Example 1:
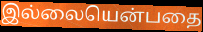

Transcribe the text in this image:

இல்லையென்பதை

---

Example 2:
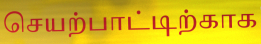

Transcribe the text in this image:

செயற்பாட்டிற்காக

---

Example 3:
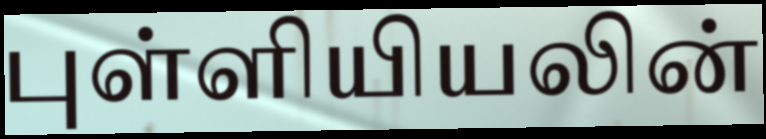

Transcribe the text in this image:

புள்ளியியலின்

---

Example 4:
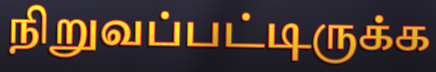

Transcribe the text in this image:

நிறுவப்பட்டிருக்க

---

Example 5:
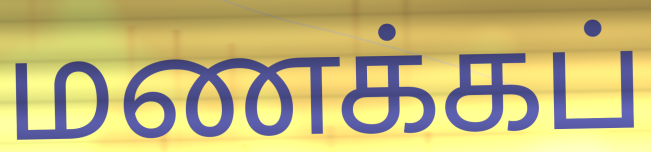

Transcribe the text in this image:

மணக்கப்